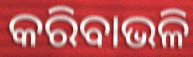
କରିବାଭଳି